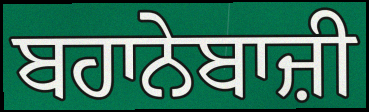
ਬਹਾਨੇਬਾਜ਼ੀ